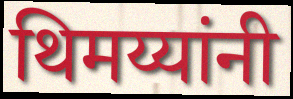
थिमय्यांनी